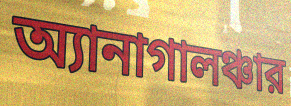
অ্যানাগালঞ্চার